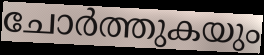
ചോർത്തുകയും